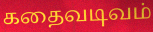
கதைவடிவம்